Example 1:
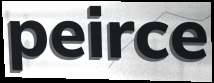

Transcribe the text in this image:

peirce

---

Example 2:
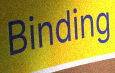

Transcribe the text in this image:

Binding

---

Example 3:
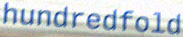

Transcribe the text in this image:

hundredfold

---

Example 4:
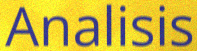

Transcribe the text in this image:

Analisis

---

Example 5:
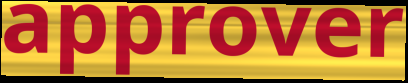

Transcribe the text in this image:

approver